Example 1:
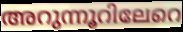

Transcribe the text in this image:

അറുന്നൂറിലേറെ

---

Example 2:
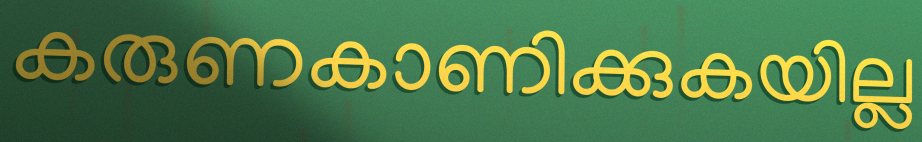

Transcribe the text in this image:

കരുണകാണിക്കുകയില്ല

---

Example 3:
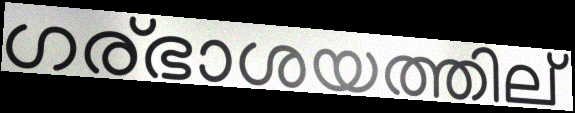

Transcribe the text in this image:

ഗര്ഭാശയത്തില്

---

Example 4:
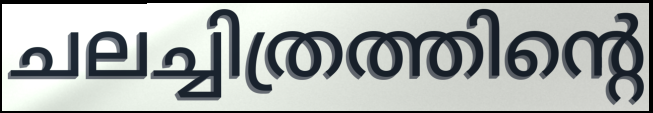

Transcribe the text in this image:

ചലച്ചിത്രത്തിന്റെ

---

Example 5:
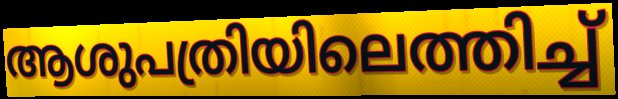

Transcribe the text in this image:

ആശുപത്രിയിലെത്തിച്ച്